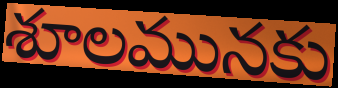
శూలమునకు